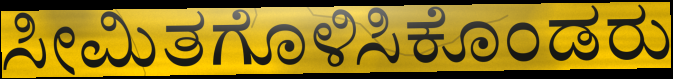
ಸೀಮಿತಗೊಳಿಸಿಕೊಂಡರು